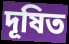
দূষিত